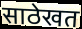
साठेखत